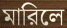
মারিলে